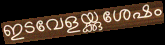
ഇടവേളയ്ക്കുശേഷം